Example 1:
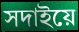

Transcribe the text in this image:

সদাইয়ে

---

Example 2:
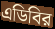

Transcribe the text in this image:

এডিবির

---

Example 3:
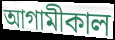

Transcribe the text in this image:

আগামীকাল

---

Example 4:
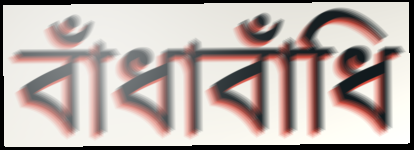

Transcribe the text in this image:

বাঁধাবাঁধি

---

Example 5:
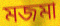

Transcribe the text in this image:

মজমা